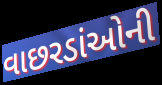
વાછરડાંઓની